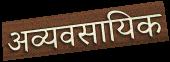
अव्यवसायिक